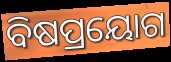
ବିଷପ୍ରୟୋଗ